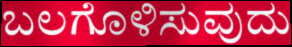
ಬಲಗೊಳಿಸುವುದು